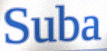
Suba